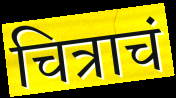
चित्राचं